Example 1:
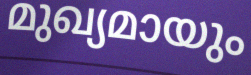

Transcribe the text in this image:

മുഖ്യമായും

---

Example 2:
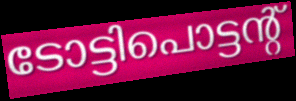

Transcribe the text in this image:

ടോട്ടിപൊട്ടന്റ്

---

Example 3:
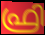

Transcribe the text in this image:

ഫ്രി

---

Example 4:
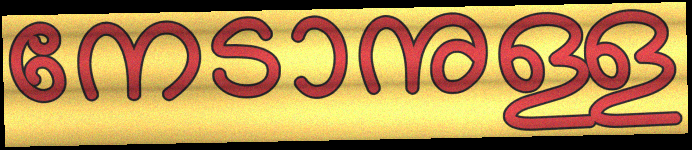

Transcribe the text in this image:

നേടാനുള്ള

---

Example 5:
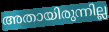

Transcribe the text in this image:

അതായിരുന്നില്ല